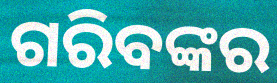
ଗରିବଙ୍କର